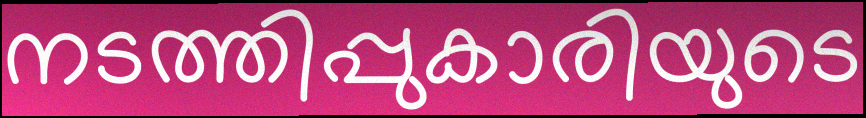
നടത്തിപ്പുകാരിയുടെ